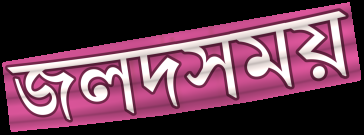
জলদসময়